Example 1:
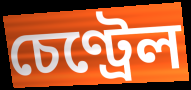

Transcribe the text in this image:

চেণ্ট্ৰেল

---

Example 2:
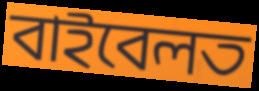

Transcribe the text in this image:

বাইবেলত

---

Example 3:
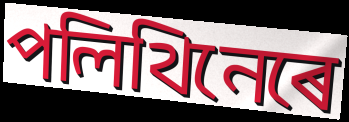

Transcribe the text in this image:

পলিথিনেৰে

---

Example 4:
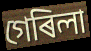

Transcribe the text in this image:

গেৰিলা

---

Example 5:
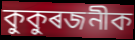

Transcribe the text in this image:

কুকুৰজনীক